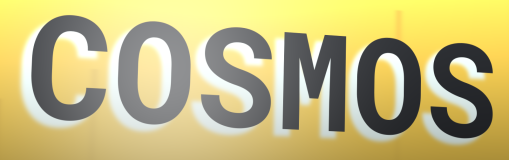
COSMOS